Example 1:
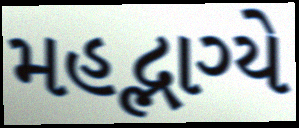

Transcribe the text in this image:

મહદ્ભાગ્યે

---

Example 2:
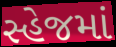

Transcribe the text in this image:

સ્હેજમાં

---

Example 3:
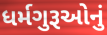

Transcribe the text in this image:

ધર્મગુરૂઓનું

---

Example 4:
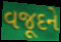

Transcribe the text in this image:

વજૂદને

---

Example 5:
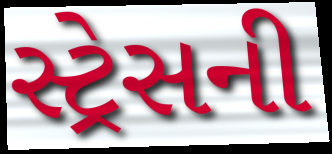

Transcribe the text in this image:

સ્ટ્રેસની